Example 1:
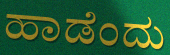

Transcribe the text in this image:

ಹಾಡೆಂದು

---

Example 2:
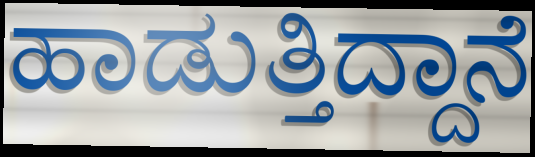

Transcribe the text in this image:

ಹಾಡುತ್ತಿದ್ದಾನೆ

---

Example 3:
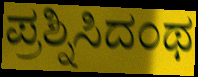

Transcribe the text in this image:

ಪ್ರಶ್ನಿಸಿದಂಥ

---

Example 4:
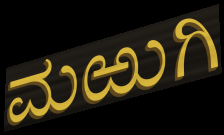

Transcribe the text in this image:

ಮಱುಗಿ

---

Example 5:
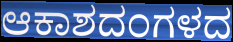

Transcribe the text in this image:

ಆಕಾಶದಂಗಳದ